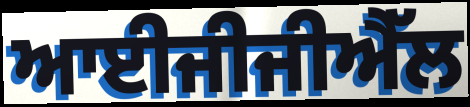
ਆਈਜੀਜੀਐੱਲ